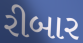
રીબાર